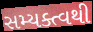
સમ્યક્ત્વથી